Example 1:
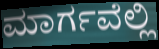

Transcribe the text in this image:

ಮಾರ್ಗವೆಲ್ಲಿ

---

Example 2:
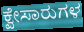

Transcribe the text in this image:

ಕ್ವೇಸಾರುಗಳ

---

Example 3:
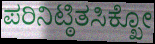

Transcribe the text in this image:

ಪರಿನಿಟ್ಠಿತಸಿಕ್ಖೋ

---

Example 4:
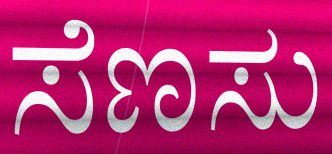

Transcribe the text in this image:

ಸೆಣಸು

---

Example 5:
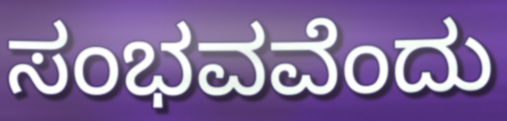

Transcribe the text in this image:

ಸಂಭವವೆಂದು